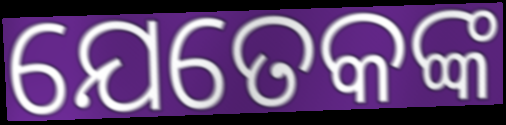
ଯେତେକଙ୍କ